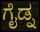
ಗೈಡ್ನ